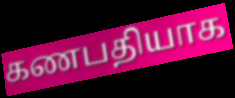
கணபதியாக